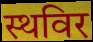
स्थविर